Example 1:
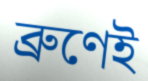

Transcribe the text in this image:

ব্ৰুণেই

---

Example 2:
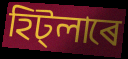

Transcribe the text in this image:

হিট্‌লাৰে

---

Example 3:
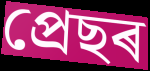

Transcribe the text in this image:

প্ৰেছৰ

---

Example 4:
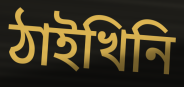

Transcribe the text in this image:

ঠাইখিনি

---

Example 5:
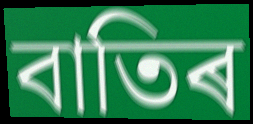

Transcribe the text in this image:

বাতিৰ